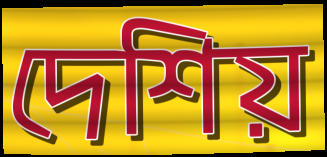
দেশিয়